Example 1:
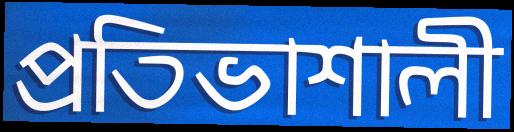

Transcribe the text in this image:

প্ৰতিভাশালী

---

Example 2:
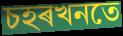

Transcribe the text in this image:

চহৰখনতে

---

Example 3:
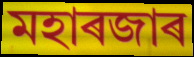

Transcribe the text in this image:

মহাৰজাৰ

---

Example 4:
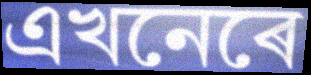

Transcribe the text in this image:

এখনেৰে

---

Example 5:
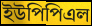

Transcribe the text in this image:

ইউপিপিএল